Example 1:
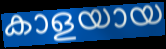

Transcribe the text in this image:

കാളയായ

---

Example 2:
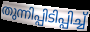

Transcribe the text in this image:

തുന്നിപ്പിടിപ്പിച്ച്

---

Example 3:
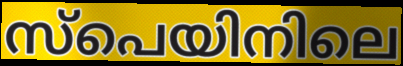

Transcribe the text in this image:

സ്പെയിനിലെ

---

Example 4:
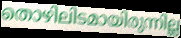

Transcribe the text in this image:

തൊഴിലിടമായിരുന്നില്ല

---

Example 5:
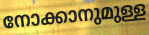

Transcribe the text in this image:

നോക്കാനുമുള്ള